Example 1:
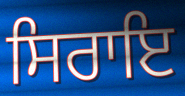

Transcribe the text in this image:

ਸਿਰਾਇ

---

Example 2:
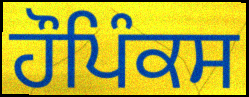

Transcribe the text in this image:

ਹੌਪਿੰਕਸ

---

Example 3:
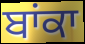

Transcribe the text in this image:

ਬਾਂਕਾ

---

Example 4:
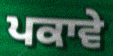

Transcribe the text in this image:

ਪਕਾਵੇ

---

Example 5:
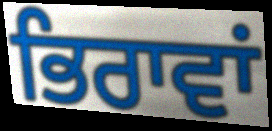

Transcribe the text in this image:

ਭਿਰਾਵਾਂ